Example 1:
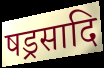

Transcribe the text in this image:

षड्रसादि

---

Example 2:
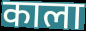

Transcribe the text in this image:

काला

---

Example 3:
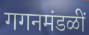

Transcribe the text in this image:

गगनमंडळीं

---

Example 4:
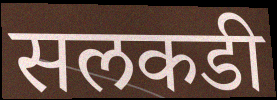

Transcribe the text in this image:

सलकडी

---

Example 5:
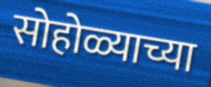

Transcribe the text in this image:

सोहोळ्याच्या